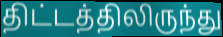
திட்டத்திலிருந்து